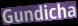
Gundicha